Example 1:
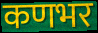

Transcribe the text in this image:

कणभर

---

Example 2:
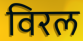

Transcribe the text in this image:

विरल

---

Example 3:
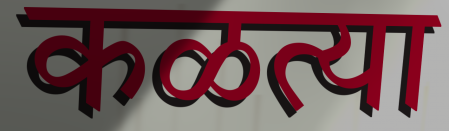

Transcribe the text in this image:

कळत्या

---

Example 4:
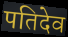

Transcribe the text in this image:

पतिदेव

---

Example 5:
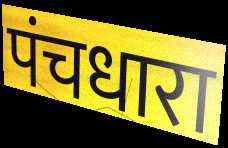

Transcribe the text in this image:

पंचधारा